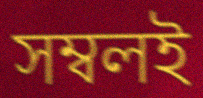
সম্বলই